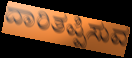
ದಾರಿತಪ್ಪಿಸುವ